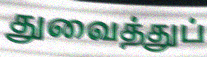
துவைத்துப்